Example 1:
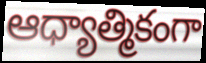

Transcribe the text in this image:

ఆధ్యాత్మికంగా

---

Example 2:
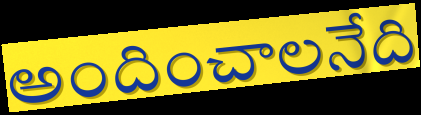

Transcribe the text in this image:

అందించాలనేది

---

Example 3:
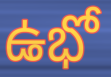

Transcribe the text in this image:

ఉభో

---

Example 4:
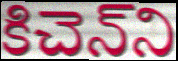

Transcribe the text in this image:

కిచెన్‌ని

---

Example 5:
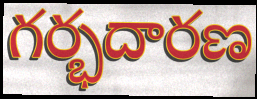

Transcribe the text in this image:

గర్భదారణ